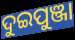
ଦୁଇପୁଞ୍ଜା